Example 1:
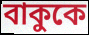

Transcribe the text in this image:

বাকুকে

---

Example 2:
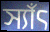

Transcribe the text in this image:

স্যাঁৎ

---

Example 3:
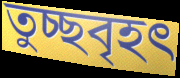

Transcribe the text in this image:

তুচ্ছবৃহৎ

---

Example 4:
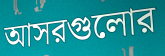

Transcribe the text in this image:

আসরগুলোর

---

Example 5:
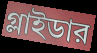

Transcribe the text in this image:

গ্লাইডার